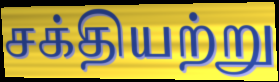
சக்தியற்று